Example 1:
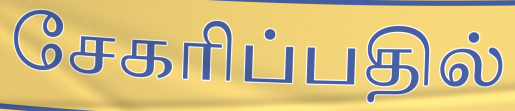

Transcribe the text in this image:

சேகரிப்பதில்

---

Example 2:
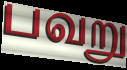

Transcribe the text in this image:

பவறு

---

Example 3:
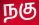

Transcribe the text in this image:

நகு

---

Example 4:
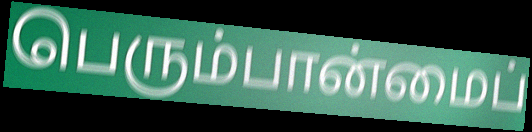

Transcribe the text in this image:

பெரும்பான்மைப்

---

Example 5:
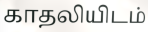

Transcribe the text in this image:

காதலியிடம்